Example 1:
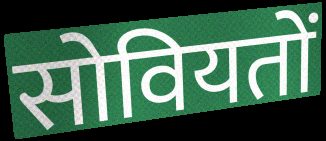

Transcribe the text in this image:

सोवियतों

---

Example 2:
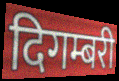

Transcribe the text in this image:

दिगम्बरी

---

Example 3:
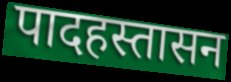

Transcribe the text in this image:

पादहस्तासन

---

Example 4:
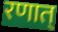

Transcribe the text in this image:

रणात्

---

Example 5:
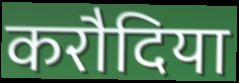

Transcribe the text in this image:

करौदिया